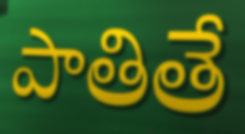
పాతితే